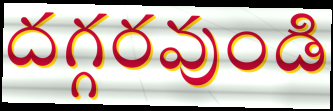
దగ్గరవుండి